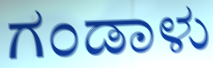
ಗಂಡಾಳು